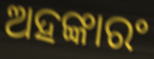
ଅହଙ୍କାରଂ